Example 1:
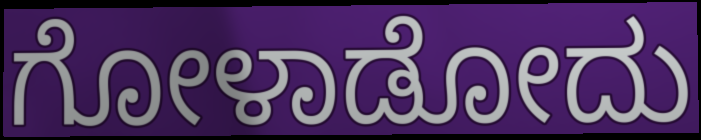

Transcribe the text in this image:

ಗೋಳಾಡೋದು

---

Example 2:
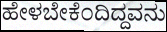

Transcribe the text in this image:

ಹೇಳಬೇಕೆಂದಿದ್ದವನು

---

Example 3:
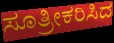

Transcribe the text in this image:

ಸೂತ್ರೀಕರಿಸಿದ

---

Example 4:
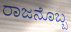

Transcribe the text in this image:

ರಾಜನೊಬ್ಬ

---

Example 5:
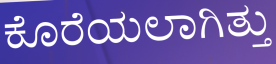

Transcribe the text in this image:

ಕೊರೆಯಲಾಗಿತ್ತು